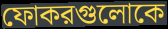
ফোকরগুলোকে